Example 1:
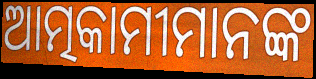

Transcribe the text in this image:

ଆତ୍ମକାମୀମାନଙ୍କ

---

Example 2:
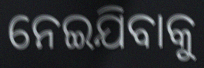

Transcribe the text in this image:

ନେଇଯିବାକୁ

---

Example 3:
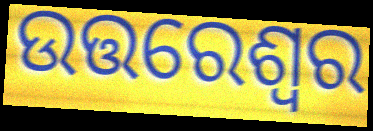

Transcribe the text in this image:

ଉତ୍ତରେଶ୍ୱର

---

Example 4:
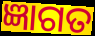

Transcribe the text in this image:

ଜ୍ଞାଗତ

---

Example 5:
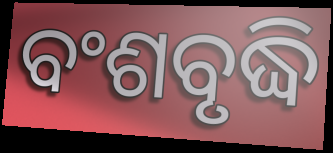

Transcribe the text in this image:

ବଂଶବୃଦ୍ଧି